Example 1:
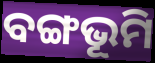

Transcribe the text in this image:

ବଙ୍ଗଭୂମି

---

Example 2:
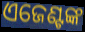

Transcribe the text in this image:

ଏଜେଣ୍ଟଙ୍କ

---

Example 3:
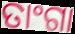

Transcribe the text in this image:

ତାଂଗା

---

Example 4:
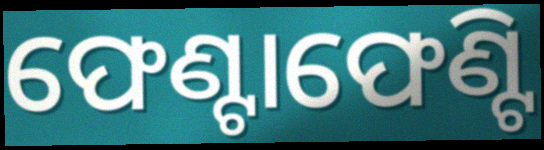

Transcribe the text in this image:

ଫେଣ୍ଟାଫେଣ୍ଟି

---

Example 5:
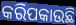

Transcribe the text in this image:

କରିପକାଉଛି